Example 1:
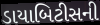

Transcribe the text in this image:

ડાયાબિટીસની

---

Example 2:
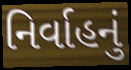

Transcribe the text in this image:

નિર્વાહનું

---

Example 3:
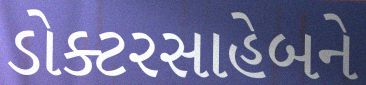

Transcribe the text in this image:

ડોક્ટરસાહેબને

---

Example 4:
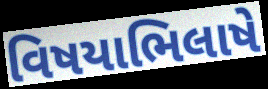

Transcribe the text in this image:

વિષયાભિલાષે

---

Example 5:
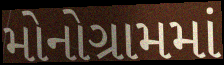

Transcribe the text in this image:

મોનોગ્રામમાં